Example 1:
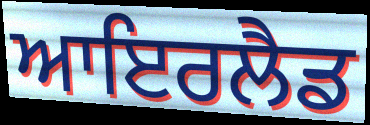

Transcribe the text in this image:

ਆਇਰਲੈਡ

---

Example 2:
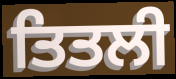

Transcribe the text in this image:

ਤਿਤਲੀ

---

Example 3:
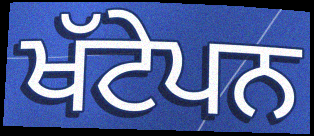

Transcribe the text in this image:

ਖੱਟੇਪਨ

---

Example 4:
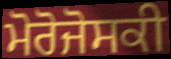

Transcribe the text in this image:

ਮੋਰੋਜੋਸਕੀ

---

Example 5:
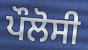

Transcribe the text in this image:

ਪੌਲੋਸੀ